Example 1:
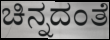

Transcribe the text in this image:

ಚಿನ್ನದಂತೆ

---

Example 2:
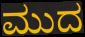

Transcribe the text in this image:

ಮುದ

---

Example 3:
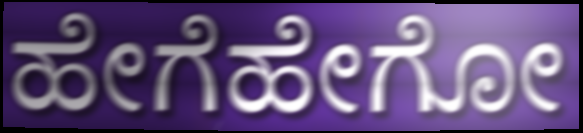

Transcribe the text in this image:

ಹೇಗೆಹೇಗೋ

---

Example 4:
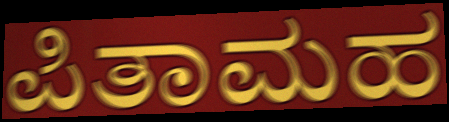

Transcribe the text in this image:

ಪಿತಾಮಹ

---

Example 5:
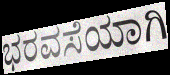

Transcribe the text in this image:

ಭರವಸೆಯಾಗಿ